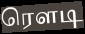
ரௌடி